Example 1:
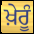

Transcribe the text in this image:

ਖ਼ੇਰੂੰ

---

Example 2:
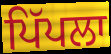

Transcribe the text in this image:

ਪਿੱਪਲਾ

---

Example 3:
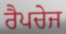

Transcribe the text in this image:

ਰੈਪਚੇਜ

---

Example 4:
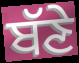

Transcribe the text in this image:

ਬੱਣੇ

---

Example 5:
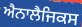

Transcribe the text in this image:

ਐਨਾਲੈਜਿਕਸ